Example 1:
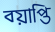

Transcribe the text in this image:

ব্য়াপ্তি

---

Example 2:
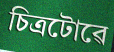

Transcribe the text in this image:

চিত্ৰটোৱে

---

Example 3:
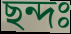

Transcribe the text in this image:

ছন্দঃ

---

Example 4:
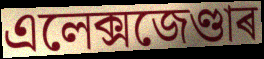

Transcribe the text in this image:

এলেক্সজেণ্ডাৰ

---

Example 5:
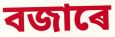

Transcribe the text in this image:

বজাৰে